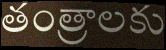
తంత్రాలకు